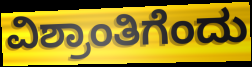
ವಿಶ್ರಾಂತಿಗೆಂದು